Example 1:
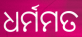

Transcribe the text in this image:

ଧର୍ମମତ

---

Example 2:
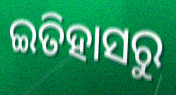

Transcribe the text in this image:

ଇତିହାସରୁ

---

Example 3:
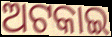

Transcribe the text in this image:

ଅଟକାଇ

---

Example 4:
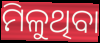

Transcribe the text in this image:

ମିଳୁଥିବା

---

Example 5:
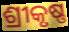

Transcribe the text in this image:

ଶ୍ରୀକୃଷ୍ଣ